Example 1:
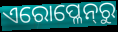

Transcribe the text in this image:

ଏରୋପ୍ଳେନ୍‍ରୁ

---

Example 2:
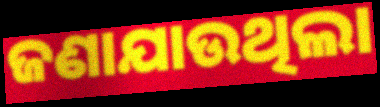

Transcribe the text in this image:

ଜଣାଯାଉଥିଲା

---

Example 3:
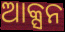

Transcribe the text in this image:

ଆକ୍ସନ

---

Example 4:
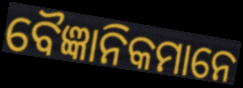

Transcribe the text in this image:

ବୈଜ୍ଞାନିକମାନେ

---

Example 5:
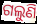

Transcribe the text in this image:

ଗଲୁଣି